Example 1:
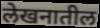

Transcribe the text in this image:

लेखनातील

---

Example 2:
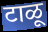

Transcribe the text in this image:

टाळू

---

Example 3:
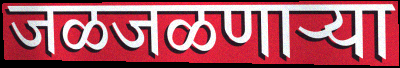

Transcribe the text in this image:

जळजळणाऱ्या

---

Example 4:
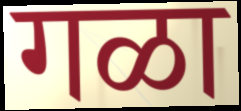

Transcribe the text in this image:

गळा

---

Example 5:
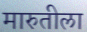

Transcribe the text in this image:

मारुतीला